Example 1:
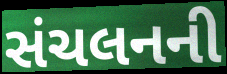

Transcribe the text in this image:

સંચલનની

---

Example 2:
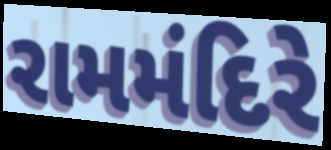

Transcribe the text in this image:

રામમંદિરે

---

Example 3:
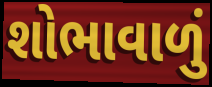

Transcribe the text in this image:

શોભાવાળું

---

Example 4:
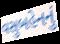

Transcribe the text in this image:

વસુબહેનનું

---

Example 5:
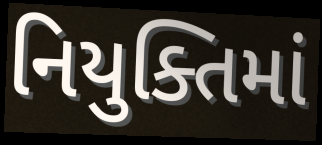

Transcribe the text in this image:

નિયુક્તિમાં